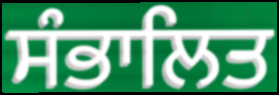
ਸੰਭਾਲਿਤ